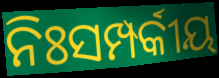
ନିଃସମ୍ପର୍କୀୟ